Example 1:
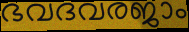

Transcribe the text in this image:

ഭവദവരജാം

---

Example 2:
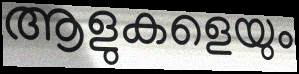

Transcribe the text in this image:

ആളുകളെയും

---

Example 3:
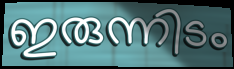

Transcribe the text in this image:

ഇരുന്നിടം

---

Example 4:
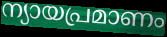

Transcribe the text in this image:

ന്യായപ്രമാണം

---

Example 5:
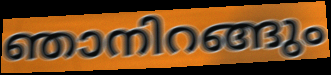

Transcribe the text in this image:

ഞാനിറങ്ങും